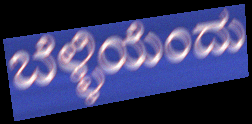
ಬೆಳ್ಳಿಯೆಂದು